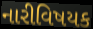
નારીવિષયક